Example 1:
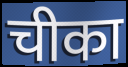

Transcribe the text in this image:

चीका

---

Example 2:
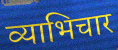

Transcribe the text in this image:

व्याभिचार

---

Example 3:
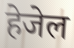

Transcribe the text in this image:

हेजेल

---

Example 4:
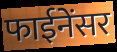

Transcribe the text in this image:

फाईनेंसर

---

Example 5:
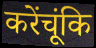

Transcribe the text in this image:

करेंचूंकि